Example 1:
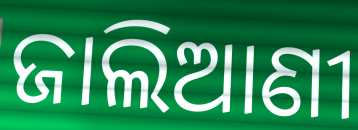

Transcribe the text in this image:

ଜାଲିଆଣୀ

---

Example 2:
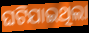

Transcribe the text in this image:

ଘଟିଯାଇଥିଲା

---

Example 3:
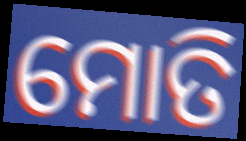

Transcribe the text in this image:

ମୋତି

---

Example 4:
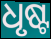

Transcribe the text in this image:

ଧୃଷ୍ଟ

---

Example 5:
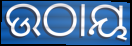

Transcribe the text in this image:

ଉଠାୟ